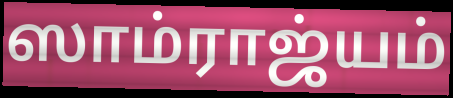
ஸாம்ராஜ்யம்